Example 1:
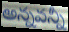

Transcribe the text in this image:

అన్నవన్నీ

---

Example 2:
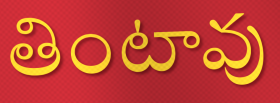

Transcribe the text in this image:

తింటావు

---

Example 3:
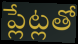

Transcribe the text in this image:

ప్లేట్లతో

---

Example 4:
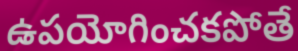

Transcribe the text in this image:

ఉపయోగించకపోతే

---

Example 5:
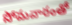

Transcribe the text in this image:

సోమవారంతో